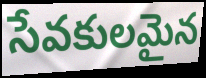
సేవకులమైన